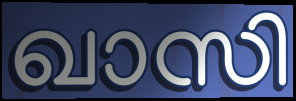
ഖാസി